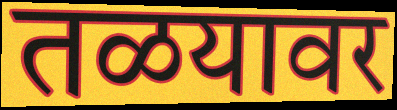
तळयावर